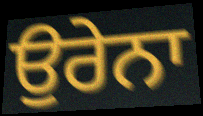
ਉਰੇਨਾ